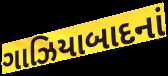
ગાઝિયાબાદનાં